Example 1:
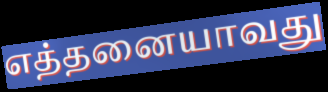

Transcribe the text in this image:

எத்தனையாவது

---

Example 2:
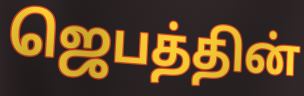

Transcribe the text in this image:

ஜெபத்தின்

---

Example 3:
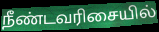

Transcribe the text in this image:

நீண்டவரிசையில்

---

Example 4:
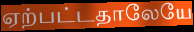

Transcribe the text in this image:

ஏற்பட்டதாலேயே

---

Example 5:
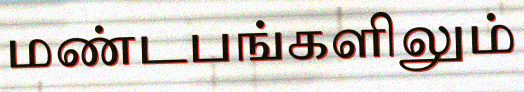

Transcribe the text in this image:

மண்டபங்களிலும்